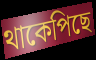
থাকেপিছে